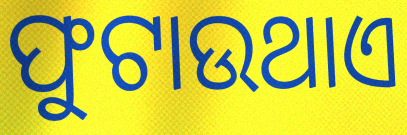
ଫୁଟାଉଥାଏ